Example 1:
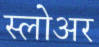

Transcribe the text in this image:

स्लोअर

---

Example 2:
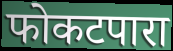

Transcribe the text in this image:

फोकटपारा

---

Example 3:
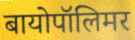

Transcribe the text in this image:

बायोपॉलिमर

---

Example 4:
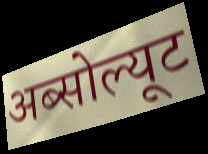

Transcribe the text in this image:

अब्सोल्यूट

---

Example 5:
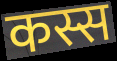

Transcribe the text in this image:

कस्स